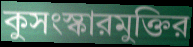
কুসংস্কারমুক্তির